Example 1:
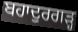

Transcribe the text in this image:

ਬਹਾਦੁਰਗੜ੍ਹ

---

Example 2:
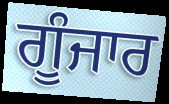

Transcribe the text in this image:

ਗੂੰਜਾਰ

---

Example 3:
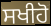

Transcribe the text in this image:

ਸਖੀਹੋ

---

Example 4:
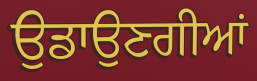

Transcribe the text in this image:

ਉਡਾਉਣਗੀਆਂ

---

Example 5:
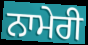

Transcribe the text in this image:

ਨਾਮੇਰੀ